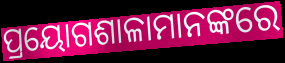
ପ୍ରୟୋଗଶାଳାମାନଙ୍କରେ